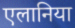
एलानिया